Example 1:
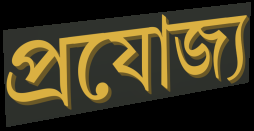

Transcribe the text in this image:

প্ৰযোজ্য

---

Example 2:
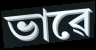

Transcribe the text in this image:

ভাৱে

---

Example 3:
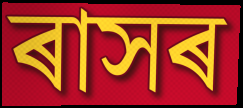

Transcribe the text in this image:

ৰাসৰ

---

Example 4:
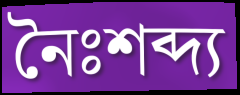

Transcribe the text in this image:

নৈঃশব্দ্য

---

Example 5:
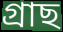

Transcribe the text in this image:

গ্ৰাছ